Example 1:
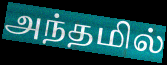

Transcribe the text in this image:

அந்தமில்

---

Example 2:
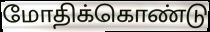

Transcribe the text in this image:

மோதிக்கொண்டு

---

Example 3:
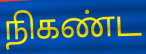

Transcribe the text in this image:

நிகண்ட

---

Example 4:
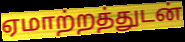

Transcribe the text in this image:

ஏமாற்றத்துடன்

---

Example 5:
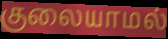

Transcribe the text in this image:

குலையாமல்